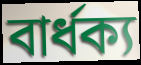
বার্ধক্য